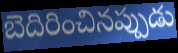
బెదిరించినప్పుడు